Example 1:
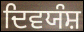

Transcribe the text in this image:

ਦਿਵਯੰਸ਼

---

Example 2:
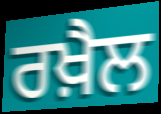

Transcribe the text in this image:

ਰਖ਼ੈਲ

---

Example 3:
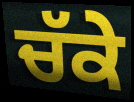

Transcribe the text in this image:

ਚੱਕੇ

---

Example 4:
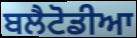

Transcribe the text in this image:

ਬਲੈਟੋਡੀਆ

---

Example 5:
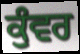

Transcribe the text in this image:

ਕੁੰਵਰ